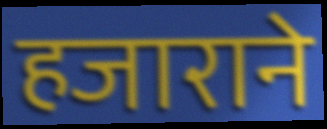
हजाराने